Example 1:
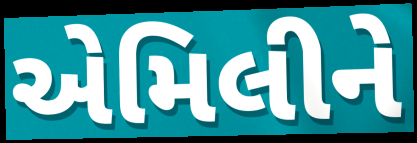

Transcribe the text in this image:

એમિલીને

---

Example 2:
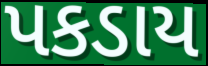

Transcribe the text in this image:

પકડાય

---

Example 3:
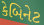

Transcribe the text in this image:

કેબિનેટ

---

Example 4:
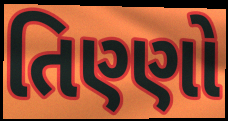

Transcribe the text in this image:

તિણ્ણો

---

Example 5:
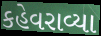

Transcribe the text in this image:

કહેવરાવ્યા